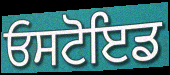
ਓਸਟੋਇਡ